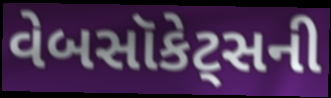
વેબસૉકેટ્સની